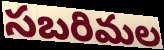
సబరిమల